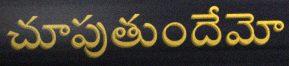
చూపుతుందేమో